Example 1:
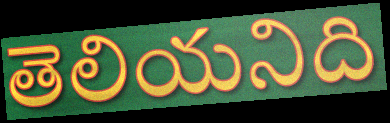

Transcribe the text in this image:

తెలియనిది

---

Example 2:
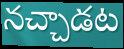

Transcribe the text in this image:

నచ్చాడట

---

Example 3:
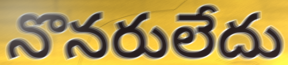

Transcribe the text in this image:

నొనరులేదు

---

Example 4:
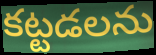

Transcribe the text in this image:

కట్టడలను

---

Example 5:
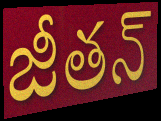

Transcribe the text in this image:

జీతన్